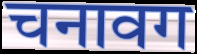
चनावग